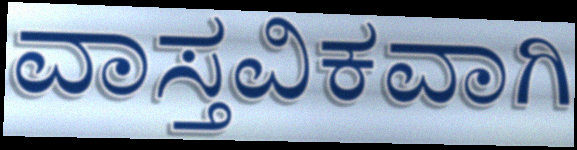
ವಾಸ್ತವಿಕವಾಗಿ